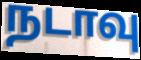
நடாவு